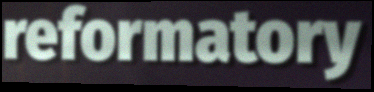
reformatory